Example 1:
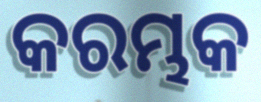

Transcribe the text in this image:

କରମ୍ଭକ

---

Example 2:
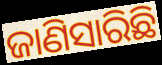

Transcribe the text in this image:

ଜାଣିସାରିଛି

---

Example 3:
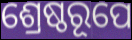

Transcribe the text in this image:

ଶ୍ରେଷ୍ଠରୂପେ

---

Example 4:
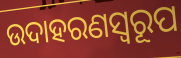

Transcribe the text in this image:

ଉଦାହରଣସ୍ୱରୂପ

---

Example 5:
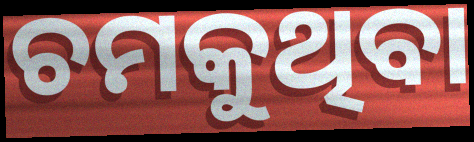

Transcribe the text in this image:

ଚମକୁଥିବା